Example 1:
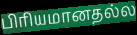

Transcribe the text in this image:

பிரியமானதல்ல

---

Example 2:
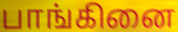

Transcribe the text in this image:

பாங்கினை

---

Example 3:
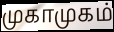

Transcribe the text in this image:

முகாமுகம்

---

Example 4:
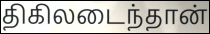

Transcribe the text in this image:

திகிலடைந்தான்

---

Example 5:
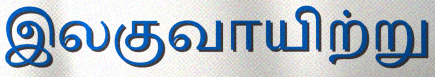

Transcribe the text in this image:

இலகுவாயிற்று